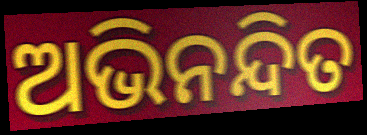
ଅଭିନନ୍ଦିତ